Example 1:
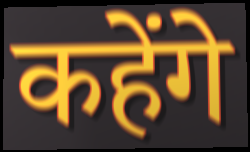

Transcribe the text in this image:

कहेंगे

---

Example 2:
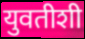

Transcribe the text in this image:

युवतीशी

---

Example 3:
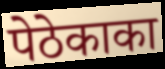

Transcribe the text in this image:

पेठेकाका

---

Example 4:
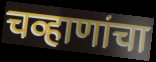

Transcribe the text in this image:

चव्हाणांचा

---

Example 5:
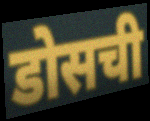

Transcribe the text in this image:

डोसची